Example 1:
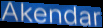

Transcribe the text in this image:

Akendar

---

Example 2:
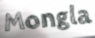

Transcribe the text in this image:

Mongla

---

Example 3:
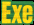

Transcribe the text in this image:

Exe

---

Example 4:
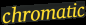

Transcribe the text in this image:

chromatic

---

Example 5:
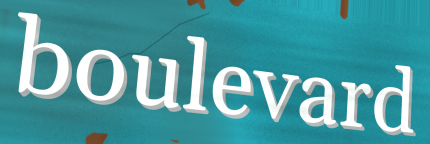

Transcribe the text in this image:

boulevard